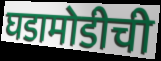
घडामोडीची